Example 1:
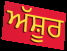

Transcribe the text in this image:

ਅੱਸ਼ੂਰ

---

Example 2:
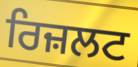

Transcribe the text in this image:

ਰਿਜ਼ਲਟ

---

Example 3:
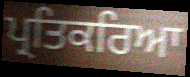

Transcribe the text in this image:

ਪ੍ਰਤਿਕਰਿਆ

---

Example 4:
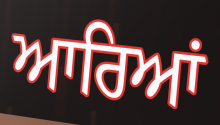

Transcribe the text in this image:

ਆਰਿਆਂ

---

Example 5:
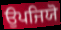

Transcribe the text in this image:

ਉਪਜਿਯੋ